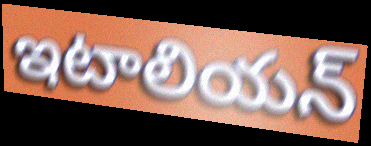
ఇటాలియన్